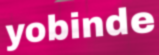
yobinde